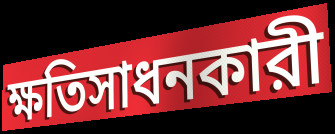
ক্ষতিসাধনকারী